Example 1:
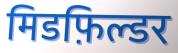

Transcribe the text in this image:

मिडफ़िल्डर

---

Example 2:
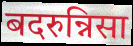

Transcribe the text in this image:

बदरुन्निसा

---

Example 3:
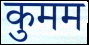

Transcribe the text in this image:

कुमम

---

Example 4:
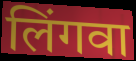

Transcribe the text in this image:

लिंगवा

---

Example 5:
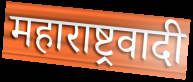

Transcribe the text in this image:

महाराष्ट्रवादी